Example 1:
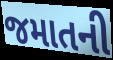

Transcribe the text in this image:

જમાતની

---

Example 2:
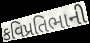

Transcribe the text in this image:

કવિપ્રતિભાની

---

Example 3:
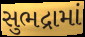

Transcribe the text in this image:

સુભદ્રામાં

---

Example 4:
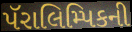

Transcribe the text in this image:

પૅરાલિમ્પિકની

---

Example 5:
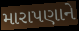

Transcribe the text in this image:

મારાપણાને